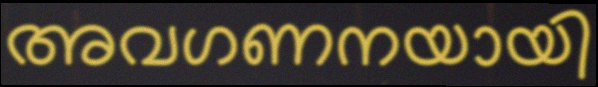
അവഗണനയായി